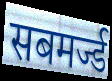
सबमर्ज्ड